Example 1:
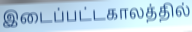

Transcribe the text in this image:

இடைப்பட்டகாலத்தில்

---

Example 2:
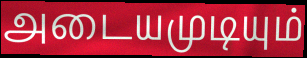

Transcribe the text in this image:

அடையமுடியும்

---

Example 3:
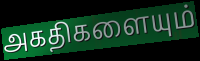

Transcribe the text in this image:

அகதிகளையும்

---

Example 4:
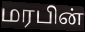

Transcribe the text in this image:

மரபின்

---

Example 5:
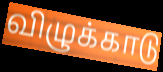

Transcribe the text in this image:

விழுக்காடு